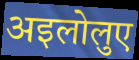
अइलोलुए